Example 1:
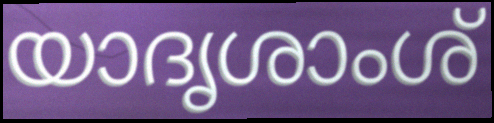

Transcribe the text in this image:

യാദൃശാംശ്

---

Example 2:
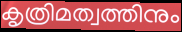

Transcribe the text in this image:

കൃത്രിമത്വത്തിനും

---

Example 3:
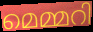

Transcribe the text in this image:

മെമ്മറി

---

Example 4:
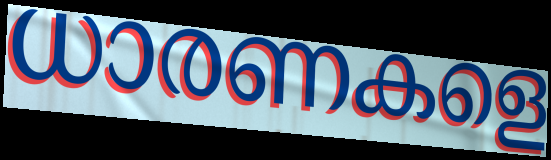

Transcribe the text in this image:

ധാരണകളെ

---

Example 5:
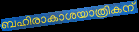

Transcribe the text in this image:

ബഹിരാകാശയാത്രികന്